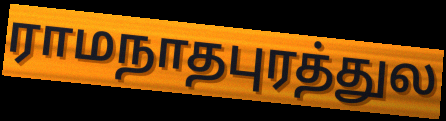
ராமநாதபுரத்துல